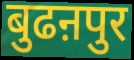
बुढऩपुर